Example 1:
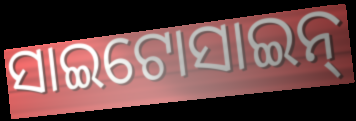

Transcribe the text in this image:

ସାଇଟୋସାଇନ୍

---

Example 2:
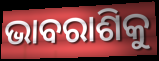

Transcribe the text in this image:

ଭାବରାଶିକୁ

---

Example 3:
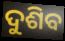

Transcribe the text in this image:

ଦୁଶିବ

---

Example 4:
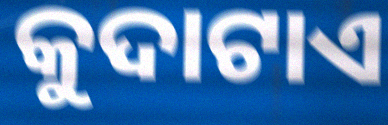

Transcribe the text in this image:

କୁଦାଟାଏ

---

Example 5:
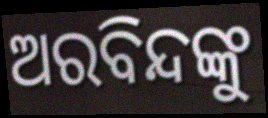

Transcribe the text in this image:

ଅରବିନ୍ଦଙ୍କୁ